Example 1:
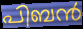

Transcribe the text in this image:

പിബൻ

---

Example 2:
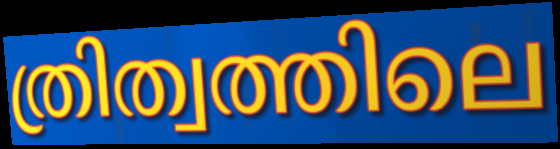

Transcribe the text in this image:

ത്രിത്വത്തിലെ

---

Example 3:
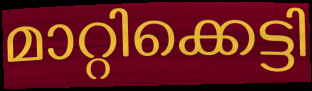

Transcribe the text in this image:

മാറ്റിക്കെട്ടി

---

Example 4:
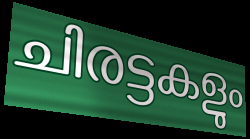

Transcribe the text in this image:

ചിരട്ടകളും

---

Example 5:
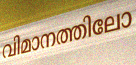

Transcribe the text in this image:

വിമാനത്തിലോ